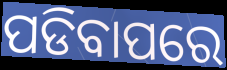
ପଡିବାପରେ